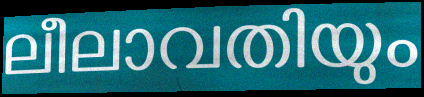
ലീലാവതിയും